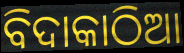
ବିଦାକାଠିଆ